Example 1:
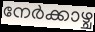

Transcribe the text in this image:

നേർക്കാഴ്ച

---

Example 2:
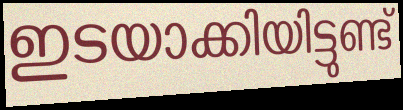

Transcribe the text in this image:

ഇടയാക്കിയിട്ടുണ്ട്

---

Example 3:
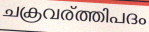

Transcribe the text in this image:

ചക്രവര്ത്തിപദം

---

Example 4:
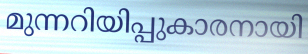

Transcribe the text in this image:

മുന്നറിയിപ്പുകാരനായി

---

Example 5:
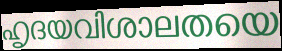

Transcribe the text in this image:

ഹൃദയവിശാലതയെ